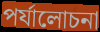
পৰ্যালোচনা